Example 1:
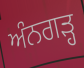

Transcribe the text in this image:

ਅੰਨਗੜ੍ਹ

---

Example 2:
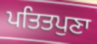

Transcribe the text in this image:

ਪਤਿਤਪੁਣਾ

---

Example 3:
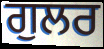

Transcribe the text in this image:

ਗੁਲਰ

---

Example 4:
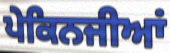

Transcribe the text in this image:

ਪੇਕਿਨਜੀਆਂ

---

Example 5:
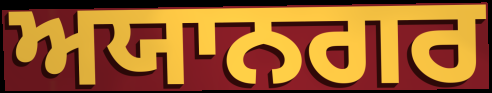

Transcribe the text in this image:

ਅਯਾਨਗਰ